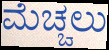
ಮೆಚ್ಚಲು